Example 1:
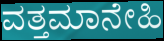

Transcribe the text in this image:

ವತ್ತಮಾನೇಹಿ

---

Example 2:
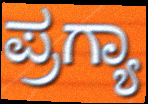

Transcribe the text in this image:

ಪ್ರಗ್ಯಾ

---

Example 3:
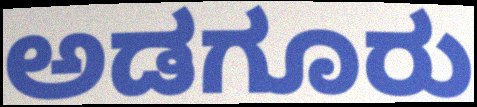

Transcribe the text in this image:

ಅಡಗೂರು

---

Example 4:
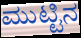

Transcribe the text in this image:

ಮುಟ್ಟಿನ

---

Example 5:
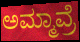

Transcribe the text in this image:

ಅಮ್ಮಾವ್ರೆ